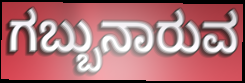
ಗಬ್ಬುನಾರುವ